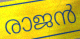
രാജൻ